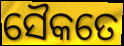
ସୈକତେ